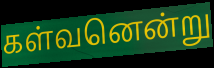
கள்வனென்று